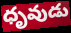
ధృవుడు